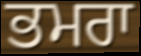
ਭਮਰਾ